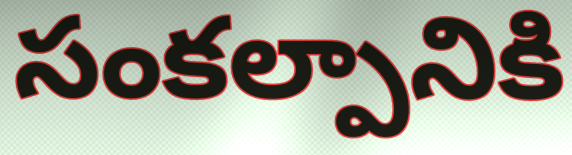
సంకల్పానికి